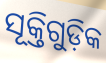
ସୂକ୍ତିଗୁଡ଼ିକ